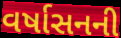
વર્ષાસનની